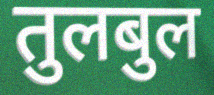
तुलबुल